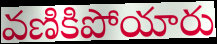
వణికిపోయారు